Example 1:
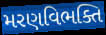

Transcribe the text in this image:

મરણવિભક્તિ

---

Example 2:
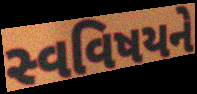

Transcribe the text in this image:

સ્વવિષયને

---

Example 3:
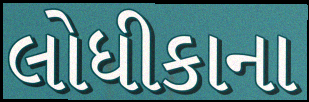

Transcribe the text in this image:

લોધીકાના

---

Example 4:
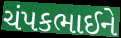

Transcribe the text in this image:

ચંપકભાઈને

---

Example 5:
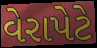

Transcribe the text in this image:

વેરાપેટે